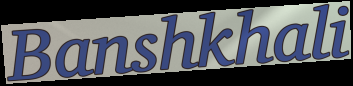
Banshkhali